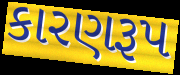
કારણરૂપ